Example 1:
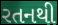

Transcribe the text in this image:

રતનથી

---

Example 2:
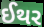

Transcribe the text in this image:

ઈથર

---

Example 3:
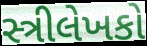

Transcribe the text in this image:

સ્ત્રીલેખકો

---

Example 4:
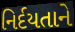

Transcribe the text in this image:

નિર્દયતાને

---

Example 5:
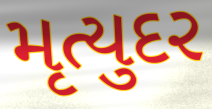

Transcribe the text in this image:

મૃત્યુદર